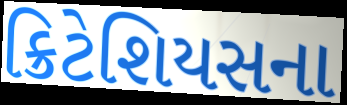
ક્રિટેશિયસના